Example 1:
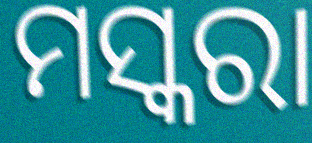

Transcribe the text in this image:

ମସ୍କରା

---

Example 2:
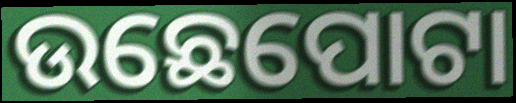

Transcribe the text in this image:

ଉଛେପୋଟା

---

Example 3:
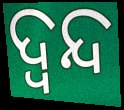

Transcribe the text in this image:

ଦ୍ବନ୍ଦ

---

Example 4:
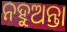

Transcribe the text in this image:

ନହୁଅନ୍ତା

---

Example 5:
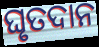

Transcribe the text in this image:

ଘୃତଦାନ